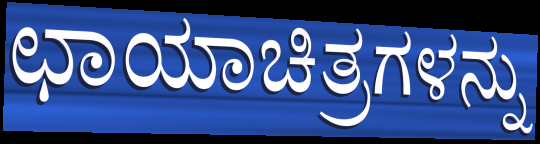
ಛಾಯಾಚಿತ್ರಗಳನ್ನು